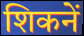
शिकनें